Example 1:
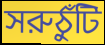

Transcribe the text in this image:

সরুঠুঁটি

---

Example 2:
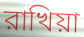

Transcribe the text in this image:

রাখিয়া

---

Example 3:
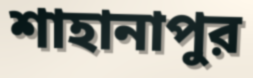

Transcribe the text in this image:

শাহানাপুর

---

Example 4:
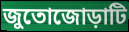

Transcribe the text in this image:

জুতোজোড়াটি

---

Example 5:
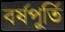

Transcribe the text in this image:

বর্ষপূর্তি